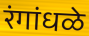
रंगांधळे